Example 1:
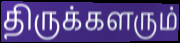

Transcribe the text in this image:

திருக்களரும்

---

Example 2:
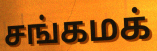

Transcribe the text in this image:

சங்கமக்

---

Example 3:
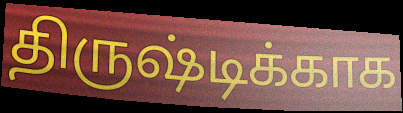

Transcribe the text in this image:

திருஷ்டிக்காக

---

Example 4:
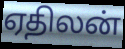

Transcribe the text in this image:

ஏதிலன்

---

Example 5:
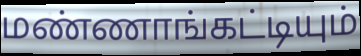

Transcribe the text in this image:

மண்ணாங்கட்டியும்